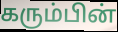
கரும்பின்